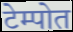
टेम्पोत